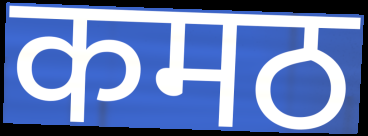
कमठ